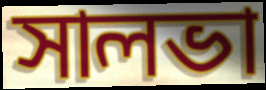
সালভা